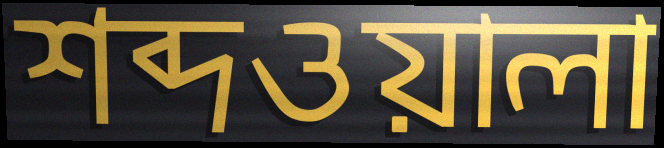
শব্দওয়ালা